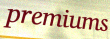
premiums